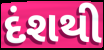
દંશથી